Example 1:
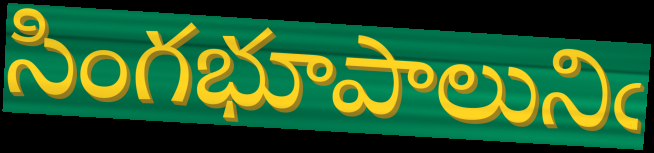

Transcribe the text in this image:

సింగభూపాలునిఁ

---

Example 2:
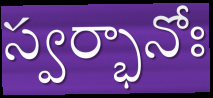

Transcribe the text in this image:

స్వర్భానోః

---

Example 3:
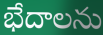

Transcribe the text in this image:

భేదాలను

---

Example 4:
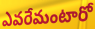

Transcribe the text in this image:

ఎవరేమంటారో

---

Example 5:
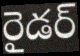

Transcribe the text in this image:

రైడర్